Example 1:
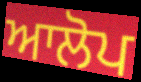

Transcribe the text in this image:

ਆਲੋਪ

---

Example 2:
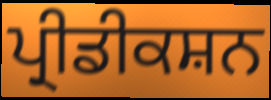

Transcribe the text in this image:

ਪ੍ਰੀਡੀਕਸ਼ਨ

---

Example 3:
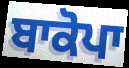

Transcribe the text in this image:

ਬਾਕੋਪਾ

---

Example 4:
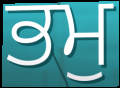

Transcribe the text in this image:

ਭਮੁ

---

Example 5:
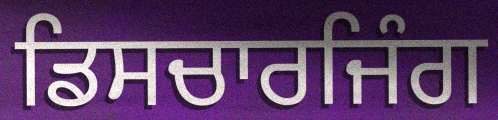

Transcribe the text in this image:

ਡਿਸਚਾਰਜਿੰਗ